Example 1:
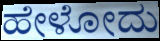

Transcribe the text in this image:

ಹೇಳೋದು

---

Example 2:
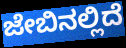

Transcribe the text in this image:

ಜೇಬಿನಲ್ಲಿದೆ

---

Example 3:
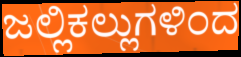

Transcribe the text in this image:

ಜಲ್ಲಿಕಲ್ಲುಗಳಿಂದ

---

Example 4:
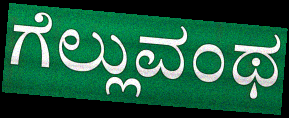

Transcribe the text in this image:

ಗೆಲ್ಲುವಂಥ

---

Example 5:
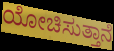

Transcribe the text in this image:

ಯೋಚಿಸುತ್ತಾನೆ